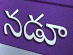
నడూ